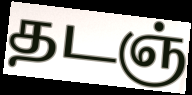
தடஞ்